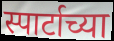
स्पार्टाच्या